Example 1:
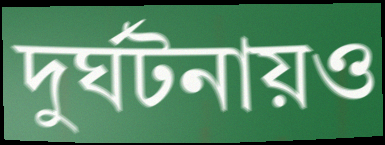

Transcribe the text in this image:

দুর্ঘটনায়ও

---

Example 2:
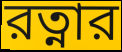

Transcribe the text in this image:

রত্নার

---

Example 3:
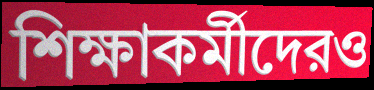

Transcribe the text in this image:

শিক্ষাকর্মীদেরও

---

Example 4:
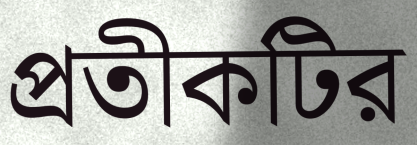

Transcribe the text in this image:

প্রতীকটির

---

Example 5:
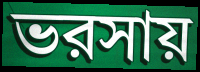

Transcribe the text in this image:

ভরসায়